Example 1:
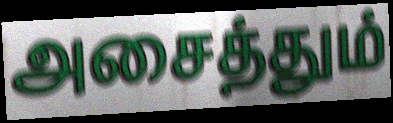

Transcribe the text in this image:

அசைத்தும்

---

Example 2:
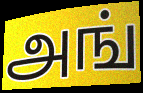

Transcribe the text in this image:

அங்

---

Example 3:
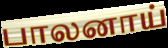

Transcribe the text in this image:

பாலனாய்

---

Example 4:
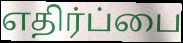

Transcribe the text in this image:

எதிர்ப்பை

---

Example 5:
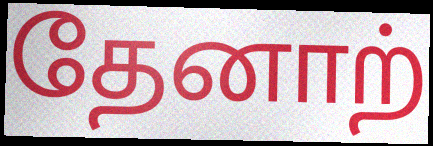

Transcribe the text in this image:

தேனாற்